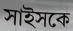
সাইসকে